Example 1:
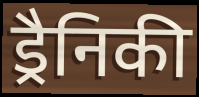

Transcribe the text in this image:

ड्रैनिकी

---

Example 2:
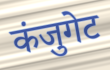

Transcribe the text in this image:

कंजुगेट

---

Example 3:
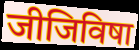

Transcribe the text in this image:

जीजिविषा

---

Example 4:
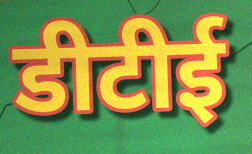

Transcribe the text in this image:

डीटीई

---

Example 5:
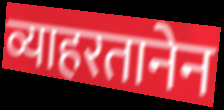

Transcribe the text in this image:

व्याहरतानेन